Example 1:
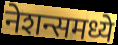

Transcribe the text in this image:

नेशन्समध्ये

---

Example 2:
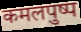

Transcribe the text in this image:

कमलपुष्प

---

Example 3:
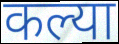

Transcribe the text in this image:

कल्या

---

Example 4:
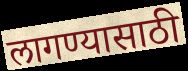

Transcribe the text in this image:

लागण्यासाठी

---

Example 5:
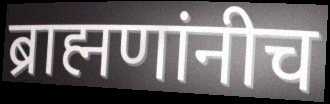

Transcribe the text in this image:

ब्राह्मणांनीच